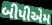
બીપીએમ